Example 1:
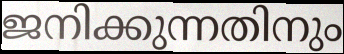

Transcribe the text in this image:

ജനിക്കുന്നതിനും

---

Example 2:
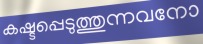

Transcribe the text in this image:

കഷ്ടപ്പെടുത്തുന്നവനോ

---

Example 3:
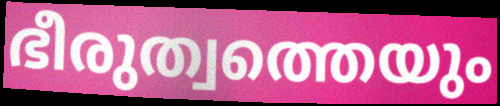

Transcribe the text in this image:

ഭീരുത്വത്തെയും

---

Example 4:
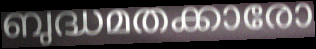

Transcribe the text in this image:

ബുദ്ധമതക്കാരോ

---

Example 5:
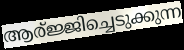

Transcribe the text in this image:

ആര്ജ്ജിച്ചെടുക്കുന്ന